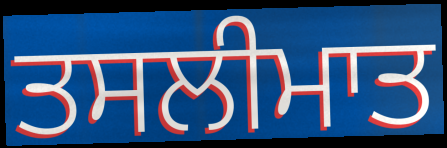
ਤਸਲੀਮਾਤ